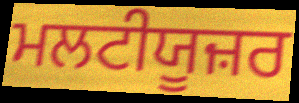
ਮਲਟੀਯੂਜ਼ਰ